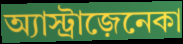
অ্যাস্ট্রাজ়েনেকা